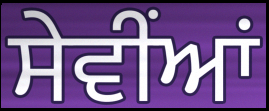
ਸੇਵੀਂਆਂ